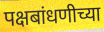
पक्षबांधणीच्या